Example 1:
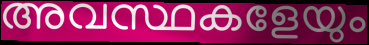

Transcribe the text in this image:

അവസ്ഥകളേയും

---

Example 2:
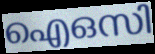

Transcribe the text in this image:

ഐഒസി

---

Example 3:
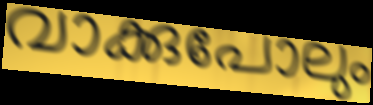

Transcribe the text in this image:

വാക്കുപോലും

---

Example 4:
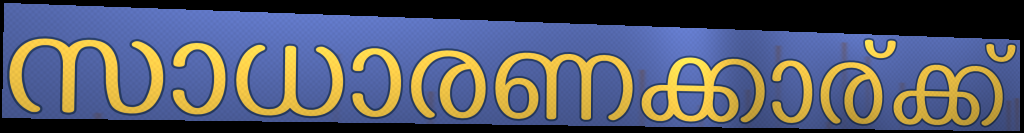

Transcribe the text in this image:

സാധാരണക്കാര്ക്ക്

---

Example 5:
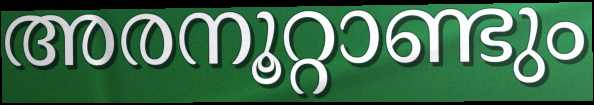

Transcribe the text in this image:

അരനൂറ്റാണ്ടും